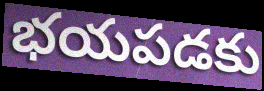
భయపడకు